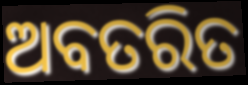
ଅବତରିତ